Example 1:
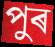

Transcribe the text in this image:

পুৰ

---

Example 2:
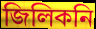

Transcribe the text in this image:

জিলিকনি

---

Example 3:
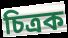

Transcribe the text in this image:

চিত্ৰক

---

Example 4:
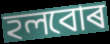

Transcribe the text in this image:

হলবোৰ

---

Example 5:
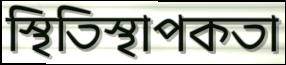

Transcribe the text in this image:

স্থিতিস্থাপকতা